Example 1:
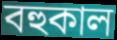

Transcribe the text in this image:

বহুকাল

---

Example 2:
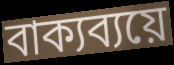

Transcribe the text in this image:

বাক্যব্যয়ে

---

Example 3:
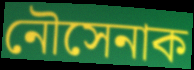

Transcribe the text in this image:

নৌসেনাক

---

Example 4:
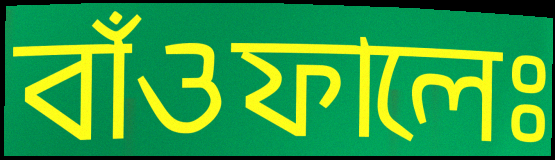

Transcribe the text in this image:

বাঁওফালেঃ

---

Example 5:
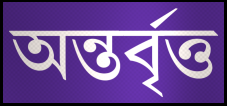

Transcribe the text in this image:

অন্তৰ্বৃত্ত